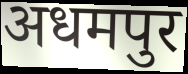
अधमपुर